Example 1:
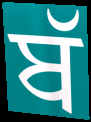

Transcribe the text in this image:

ਬੱ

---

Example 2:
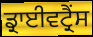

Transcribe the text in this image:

ਡ੍ਰਾਈਵਟ੍ਰੈਂਸ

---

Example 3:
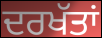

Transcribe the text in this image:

ਦਰਖੱਤਾਂ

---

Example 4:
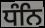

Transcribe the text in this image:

ਧੰਨਿ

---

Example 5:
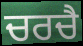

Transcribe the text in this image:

ਚਰਚੈ